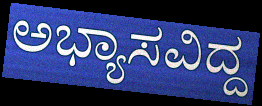
ಅಭ್ಯಾಸವಿದ್ದ